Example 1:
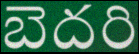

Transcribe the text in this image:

బెదరి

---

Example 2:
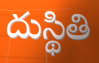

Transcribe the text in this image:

దుస్థితి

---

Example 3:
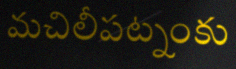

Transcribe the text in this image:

మచిలీపట్నంకు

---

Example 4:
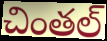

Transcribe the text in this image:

చింతల్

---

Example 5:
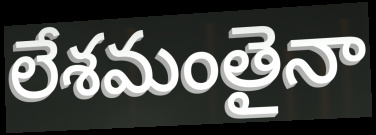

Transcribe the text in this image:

లేశమంతైనా